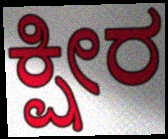
ಕ್ಷೀರ